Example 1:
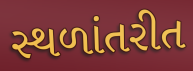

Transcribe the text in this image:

સ્થળાંતરીત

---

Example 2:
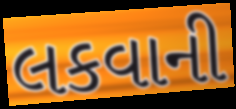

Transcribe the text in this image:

લકવાની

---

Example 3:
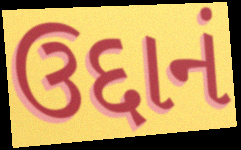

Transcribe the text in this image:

ઉદ્દાનં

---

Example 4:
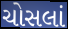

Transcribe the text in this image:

ચોસલાં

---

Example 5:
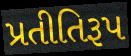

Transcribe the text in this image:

પ્રતીતિરૂપ